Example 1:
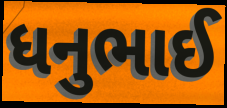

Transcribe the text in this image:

ધનુભાઈ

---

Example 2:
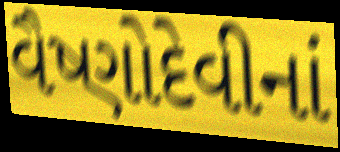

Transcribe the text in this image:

વૈષ્ણોદેવીનાં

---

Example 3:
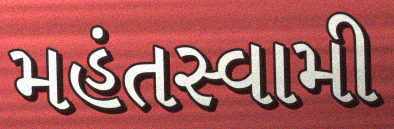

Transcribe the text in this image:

મહંતસ્વામી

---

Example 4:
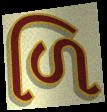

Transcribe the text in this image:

ળિ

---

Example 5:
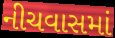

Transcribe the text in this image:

નીચવાસમાં